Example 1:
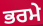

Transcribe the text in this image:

ਭਰਮੇ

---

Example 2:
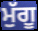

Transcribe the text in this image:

ਮੁੱਗੂ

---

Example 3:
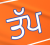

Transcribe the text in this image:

ਤੱਪ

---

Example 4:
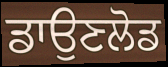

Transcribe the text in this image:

ਡਾਉਣਲੋਡ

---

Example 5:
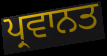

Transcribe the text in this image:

ਪ੍ਰਵਾਨਤ